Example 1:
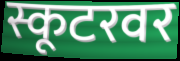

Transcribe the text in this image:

स्कूटरवर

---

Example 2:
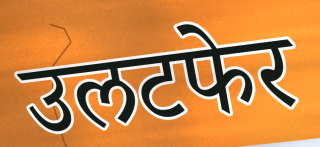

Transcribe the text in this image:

उलटफेर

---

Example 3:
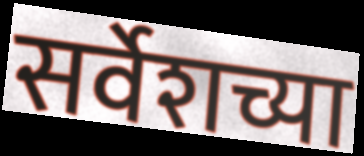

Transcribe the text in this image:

सर्वेशच्या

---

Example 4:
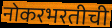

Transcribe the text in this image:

नोकरभरतीची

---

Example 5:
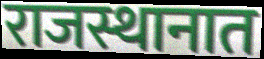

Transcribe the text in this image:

राजस्थानात